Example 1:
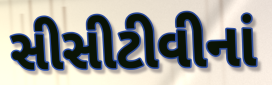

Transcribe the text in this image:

સીસીટીવીનાં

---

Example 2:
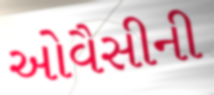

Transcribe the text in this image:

ઓવૈસીની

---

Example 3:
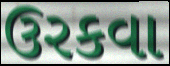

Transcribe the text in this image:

ઉરકવા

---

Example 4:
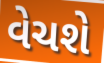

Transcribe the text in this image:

વેચશે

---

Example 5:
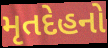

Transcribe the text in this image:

મૃતદેહનો